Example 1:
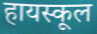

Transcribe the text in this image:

हायस्कूल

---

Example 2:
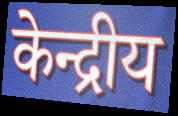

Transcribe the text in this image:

केन्द्रीय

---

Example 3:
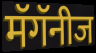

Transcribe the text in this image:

मॅगॅनीज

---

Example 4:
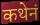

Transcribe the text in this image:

कथेनं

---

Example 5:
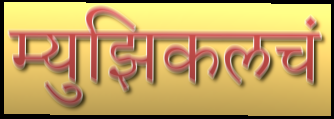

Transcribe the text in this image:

म्युझिकलचं